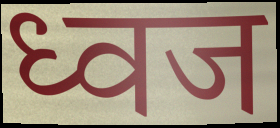
ध्वज